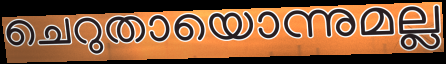
ചെറുതായൊന്നുമല്ല